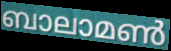
ബാലാമൺ